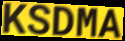
KSDMA